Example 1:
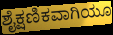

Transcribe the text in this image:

ಶೈಕ್ಷಣಿಕವಾಗಿಯೂ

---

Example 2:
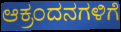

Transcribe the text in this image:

ಆಕ್ರಂದನಗಳಿಗೆ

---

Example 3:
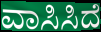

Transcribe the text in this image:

ವಾಸಿಸಿದೆ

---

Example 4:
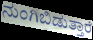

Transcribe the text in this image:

ನುಂಗಿಬಿಡುತ್ತಾರೆ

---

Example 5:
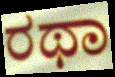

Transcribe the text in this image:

ರಥಾ